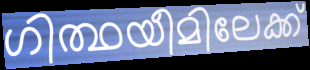
ഗിത്ഥയീമിലേക്ക്